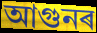
আগুনৰ